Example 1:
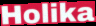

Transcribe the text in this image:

Holika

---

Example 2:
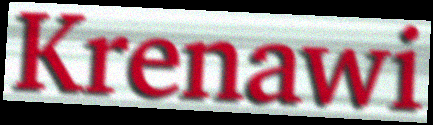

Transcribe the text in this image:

Krenawi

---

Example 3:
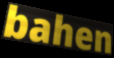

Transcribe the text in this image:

bahen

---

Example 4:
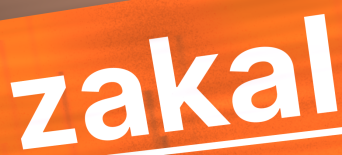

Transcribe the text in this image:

zakal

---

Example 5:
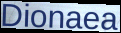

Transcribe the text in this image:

Dionaea